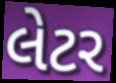
લેટર